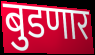
बुडणार